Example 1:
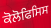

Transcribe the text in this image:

ਕੋਲੋਫਿਸਿਸ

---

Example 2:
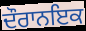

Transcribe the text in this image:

ਦੌਰਾਨਇਕ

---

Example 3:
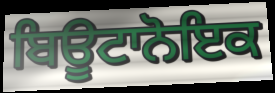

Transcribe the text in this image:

ਬਿਊਟਾਨੋਇਕ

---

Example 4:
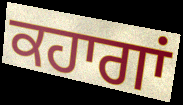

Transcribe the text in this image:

ਕਹਾਗਾਂ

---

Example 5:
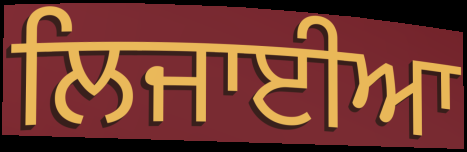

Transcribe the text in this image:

ਲਿਜਾਈਆ